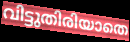
വിട്ടുതിരിയാതെ